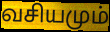
வசியமும்